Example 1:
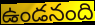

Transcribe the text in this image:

ఉండనంది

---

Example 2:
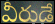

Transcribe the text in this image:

వీరుడే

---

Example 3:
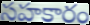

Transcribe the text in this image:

సహకారం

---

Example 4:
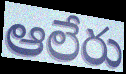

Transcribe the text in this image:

ఆలేరు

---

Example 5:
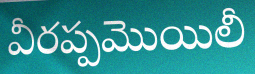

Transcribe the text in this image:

వీరప్పమొయిలీ